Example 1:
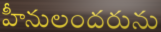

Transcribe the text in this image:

హీనులందరును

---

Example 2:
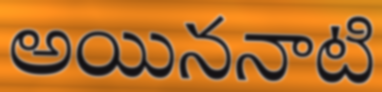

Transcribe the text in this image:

అయిననాటి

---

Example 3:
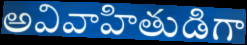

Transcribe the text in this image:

అవివాహితుడిగా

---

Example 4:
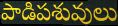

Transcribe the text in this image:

పాడిపశువులు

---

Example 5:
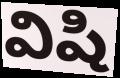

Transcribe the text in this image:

విషి